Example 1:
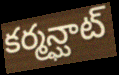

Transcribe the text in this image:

కర్మన్ఘాట్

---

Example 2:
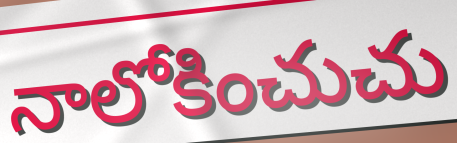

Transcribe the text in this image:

నాలోకించుచు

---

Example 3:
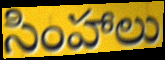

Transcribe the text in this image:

సింహాలు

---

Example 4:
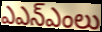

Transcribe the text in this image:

ఎఎన్ఎంలు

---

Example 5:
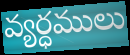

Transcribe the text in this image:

వ్యర్ధములు